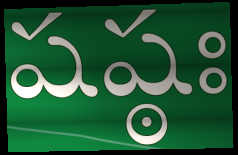
షష్ఠః